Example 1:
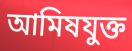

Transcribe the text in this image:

আমিষযুক্ত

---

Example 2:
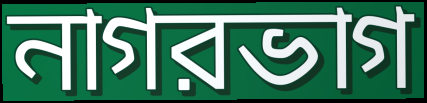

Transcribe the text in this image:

নাগরভাগ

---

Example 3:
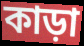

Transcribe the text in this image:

কাড়া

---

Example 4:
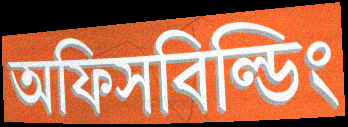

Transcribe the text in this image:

অফিসবিল্ডিং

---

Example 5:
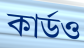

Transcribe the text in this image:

কার্ডও